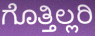
ಗೊತ್ತಿಲ್ಲರಿ